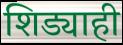
शिड्याही